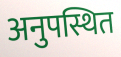
अनुपस्थित